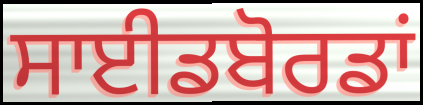
ਸਾਈਡਬੋਰਡਾਂ